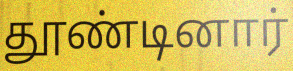
தூண்டினார்